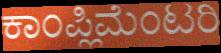
ಕಾಂಪ್ಲಿಮೆಂಟರಿ